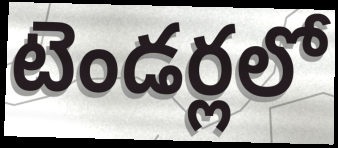
టెండర్లలో